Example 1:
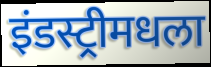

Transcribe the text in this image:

इंडस्ट्रीमधला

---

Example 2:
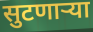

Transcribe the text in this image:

सुटणाऱ्या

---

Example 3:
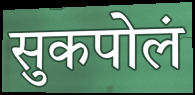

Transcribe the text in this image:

सुकपोलं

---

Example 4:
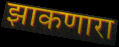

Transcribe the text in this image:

झाकणारा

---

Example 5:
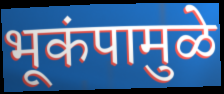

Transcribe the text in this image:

भूकंपामुळे